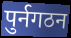
पुर्नगठन